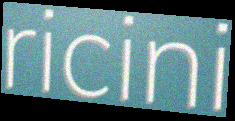
ricini